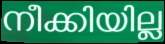
നീക്കിയില്ല